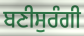
ਬਣੀਸੁਰੰਗੀ